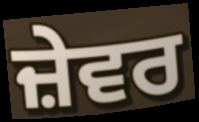
ਜ਼ੇਵਰ